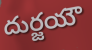
దుర్జయౌ